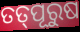
ତତ୍‌ପୂରୁଷ